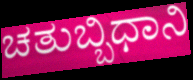
ಚತುಬ್ಬಿಧಾನಿ